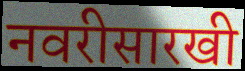
नवरीसारखी